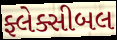
ફ્લેક્સીબલ